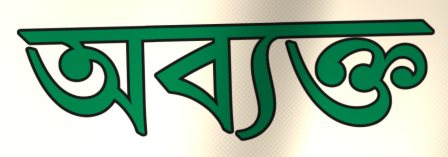
অব্যক্ত